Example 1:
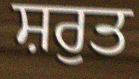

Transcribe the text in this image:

ਸ਼ਰੁਤ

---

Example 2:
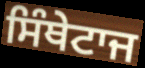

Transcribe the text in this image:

ਸਿੰਥੇਟਾਜ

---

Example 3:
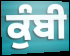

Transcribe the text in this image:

ਕੁੰਬੀ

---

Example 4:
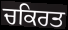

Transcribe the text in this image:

ਚਕਿਰਤ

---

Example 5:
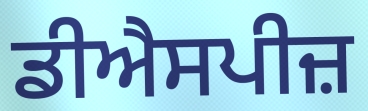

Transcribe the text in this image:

ਡੀਐਸਪੀਜ਼